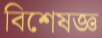
বিশেষজ্ঞ